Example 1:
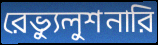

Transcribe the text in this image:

রেভ্যুলুশনারি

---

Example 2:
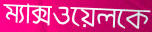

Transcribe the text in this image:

ম্যাক্সওয়েলকে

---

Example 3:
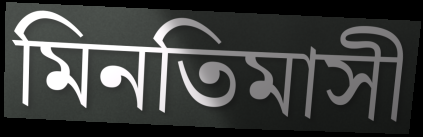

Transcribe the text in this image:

মিনতিমাসী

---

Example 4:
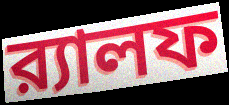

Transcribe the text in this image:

র‍্যালফ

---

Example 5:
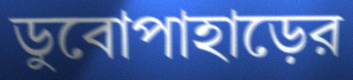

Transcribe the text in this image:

ডুবোপাহাড়ের